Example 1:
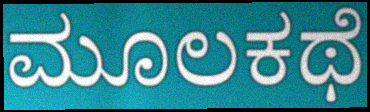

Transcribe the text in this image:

ಮೂಲಕಥೆ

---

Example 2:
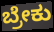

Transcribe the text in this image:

ಬ್ರೇಕು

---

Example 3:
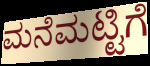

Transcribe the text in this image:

ಮನೆಮಟ್ಟಿಗೆ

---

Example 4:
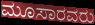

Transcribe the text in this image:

ಮೂಸಾರವರು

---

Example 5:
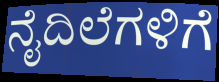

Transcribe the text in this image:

ನೈದಿಲೆಗಳಿಗೆ